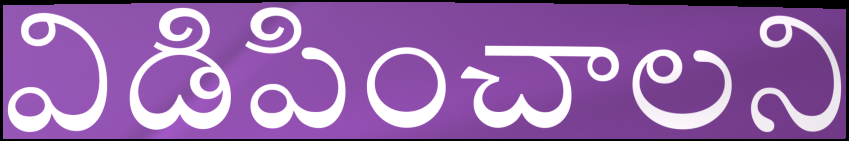
విడిపించాలని